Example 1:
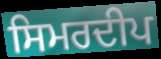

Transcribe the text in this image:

ਸਿਮਰਦੀਪ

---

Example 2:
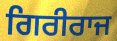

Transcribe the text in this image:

ਗਿਰੀਰਾਜ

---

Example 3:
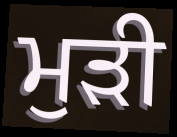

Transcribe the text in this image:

ਮੁੜੀ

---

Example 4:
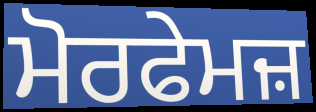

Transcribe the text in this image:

ਮੋਰਫੇਮਜ਼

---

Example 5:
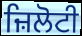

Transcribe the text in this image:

ਜ਼ਿਲੋਟੀ